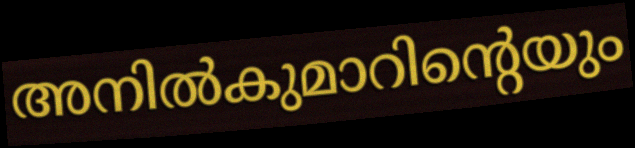
അനിൽകുമാറിന്റെയും